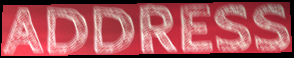
ADDRESS